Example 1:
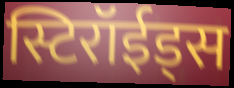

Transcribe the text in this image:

स्टिरॉईड्स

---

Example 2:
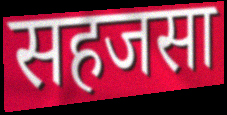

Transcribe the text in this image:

सहजसा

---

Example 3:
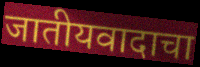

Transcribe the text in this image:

जातीयवादाचा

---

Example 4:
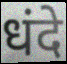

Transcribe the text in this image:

धंदे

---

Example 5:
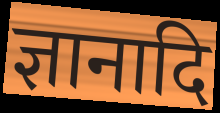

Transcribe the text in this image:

ज्ञानादि